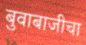
बुवाबाजीचा